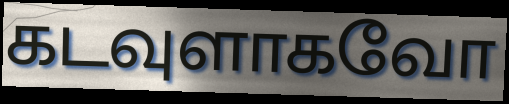
கடவுளாகவோ